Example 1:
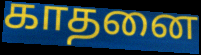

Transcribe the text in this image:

காதனை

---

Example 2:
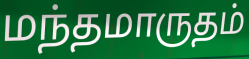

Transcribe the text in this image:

மந்தமாருதம்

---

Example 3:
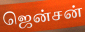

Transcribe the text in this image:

ஜென்சன்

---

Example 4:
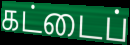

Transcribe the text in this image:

கட்டைப்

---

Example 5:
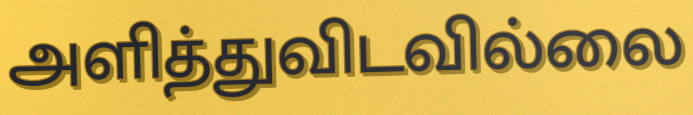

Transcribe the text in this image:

அளித்துவிடவில்லை